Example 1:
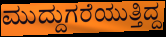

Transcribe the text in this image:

ಮುದ್ದುಗರೆಯುತ್ತಿದ್ದ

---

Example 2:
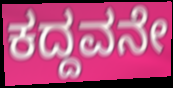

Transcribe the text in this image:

ಕದ್ದವನೇ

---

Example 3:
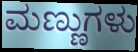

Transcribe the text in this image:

ಮಣ್ಣುಗಳು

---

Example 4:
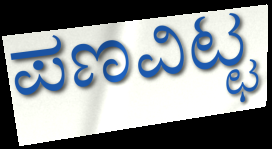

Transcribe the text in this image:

ಪಣವಿಟ್ಟ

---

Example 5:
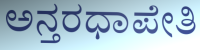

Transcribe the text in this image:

ಅನ್ತರಧಾಪೇತಿ